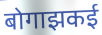
बोगाझकई